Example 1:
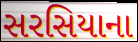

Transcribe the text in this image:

સરસિયાના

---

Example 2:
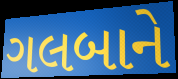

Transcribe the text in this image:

ગલબાને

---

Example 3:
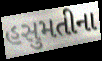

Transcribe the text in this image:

હસુમતીના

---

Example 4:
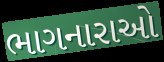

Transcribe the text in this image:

ભાગનારાઓ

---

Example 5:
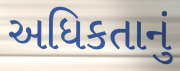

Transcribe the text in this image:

અધિકતાનું